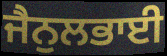
ਜੈਨੁਲਭਾਈ